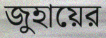
জুহায়ের